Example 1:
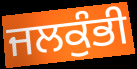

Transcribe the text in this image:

ਜਲਕੁੰਭੀ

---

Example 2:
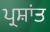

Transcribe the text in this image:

ਪ੍ਰਸ਼ਾਂਤ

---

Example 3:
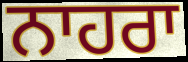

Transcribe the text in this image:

ਨਾਹਰਾ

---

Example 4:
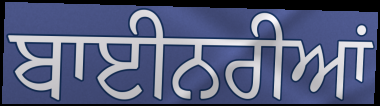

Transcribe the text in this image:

ਬਾਈਨਰੀਆਂ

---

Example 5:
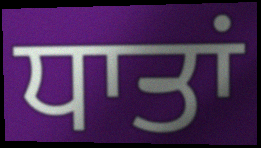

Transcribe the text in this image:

ਧਾਤਾਂ